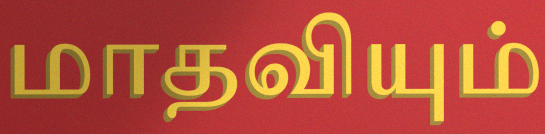
மாதவியும்